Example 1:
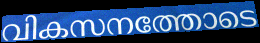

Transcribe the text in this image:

വികസനത്തോടെ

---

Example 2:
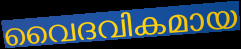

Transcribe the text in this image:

വൈദവികമായ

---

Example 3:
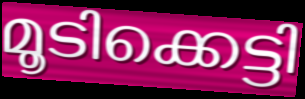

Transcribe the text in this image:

മൂടിക്കെട്ടി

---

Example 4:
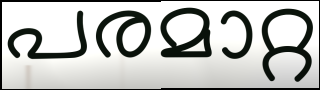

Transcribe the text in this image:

പരമാറ്റ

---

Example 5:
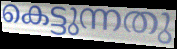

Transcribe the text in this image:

കെട്ടുന്നതു